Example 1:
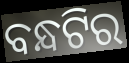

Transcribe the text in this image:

ବନ୍ଧଟିର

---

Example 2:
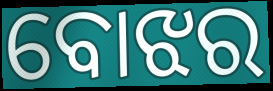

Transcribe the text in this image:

ବୋଝର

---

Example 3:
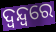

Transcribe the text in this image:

ଦ୍ୱନ୍ଦ୍ବରେ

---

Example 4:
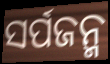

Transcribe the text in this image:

ସର୍ପଜନ୍ମ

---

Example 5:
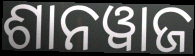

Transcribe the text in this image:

ଶାନୱାଜ